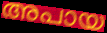
അപായ